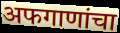
अफगाणांचा